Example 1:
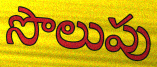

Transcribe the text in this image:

సొలుపు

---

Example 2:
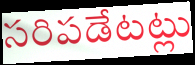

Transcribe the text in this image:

సరిపడేటట్లు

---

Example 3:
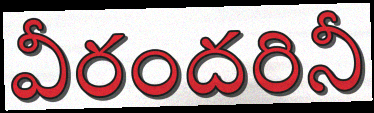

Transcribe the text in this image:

వీరందరినీ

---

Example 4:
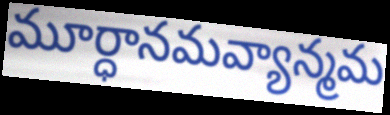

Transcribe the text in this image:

మూర్ధానమవ్యాన్మమ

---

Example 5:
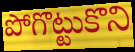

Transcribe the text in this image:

పోగొట్టుకొని